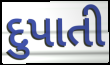
દુપાતી